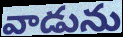
వాడును